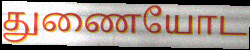
துணையோட